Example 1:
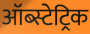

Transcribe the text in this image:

ऑब्स्टेट्रिक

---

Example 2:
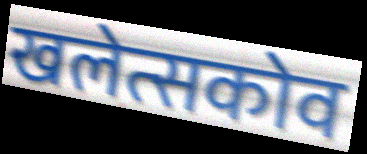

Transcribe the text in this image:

खलेत्सकोव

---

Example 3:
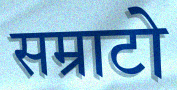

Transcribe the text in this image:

सम्राटो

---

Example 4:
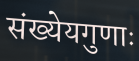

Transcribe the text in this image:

संख्येयगुणाः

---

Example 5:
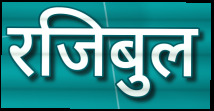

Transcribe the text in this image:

रजिबुल